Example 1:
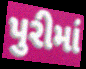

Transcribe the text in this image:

પુરીમાં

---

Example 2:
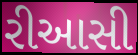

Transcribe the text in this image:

રીઆસી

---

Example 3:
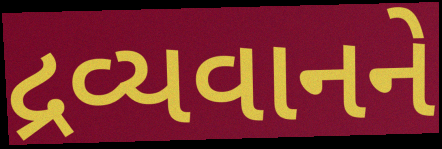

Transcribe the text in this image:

દ્રવ્યવાનને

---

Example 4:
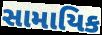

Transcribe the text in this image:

સામાયિક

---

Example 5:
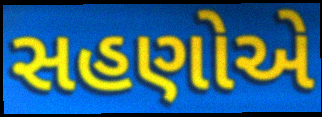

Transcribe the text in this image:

સહણોએ